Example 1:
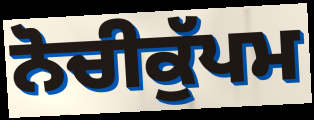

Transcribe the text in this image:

ਨੋਚੀਕੁੱਪਮ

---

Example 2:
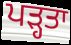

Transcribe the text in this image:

ਪੜ੍ਹਤਾ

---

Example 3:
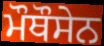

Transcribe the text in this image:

ਮੌਥੌਸੇਨ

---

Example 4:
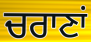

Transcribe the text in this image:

ਚਰਾਣਾਂ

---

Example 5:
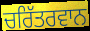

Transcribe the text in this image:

ਚਰਿੱਤਰਵਾਨ